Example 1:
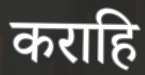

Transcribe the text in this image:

कराहि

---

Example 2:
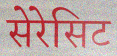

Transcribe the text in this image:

सेरेसिट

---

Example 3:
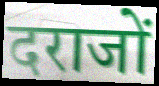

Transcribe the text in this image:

दराजों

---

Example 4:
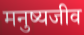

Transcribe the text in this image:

मनुष्यजीव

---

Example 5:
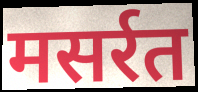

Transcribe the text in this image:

मसर्रत